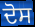
ਦੋਸ